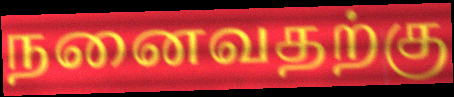
நனைவதற்கு